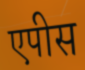
एपीस